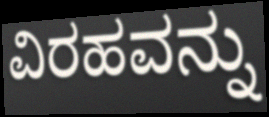
ವಿರಹವನ್ನು